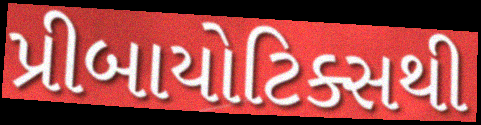
પ્રીબાયોટિક્સથી